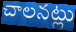
చాలనట్లు